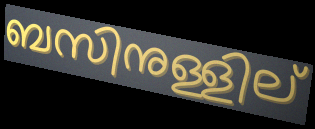
ബസിനുള്ളില്